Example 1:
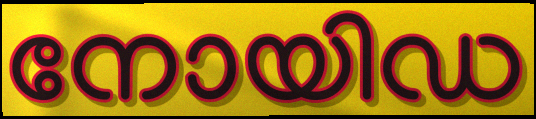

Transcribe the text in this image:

നോയിഡ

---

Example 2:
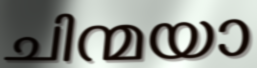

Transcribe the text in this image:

ചിന്മയാ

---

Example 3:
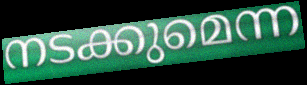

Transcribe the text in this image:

നടക്കുമെന്ന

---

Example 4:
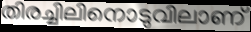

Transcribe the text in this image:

തിരച്ചിലിനൊടുവിലാണ്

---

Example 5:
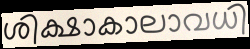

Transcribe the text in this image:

ശിക്ഷാകാലാവധി